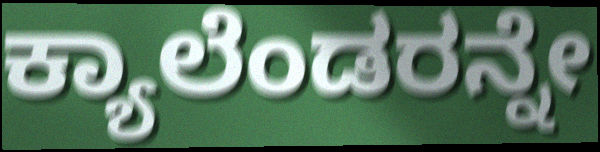
ಕ್ಯಾಲೆಂಡರನ್ನೇ